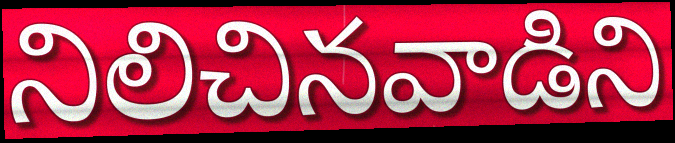
నిలిచినవాడిని